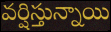
వర్షిస్తున్నాయి